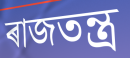
ৰাজতন্ত্ৰ